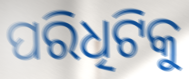
ପରିଧିଟିକୁ